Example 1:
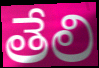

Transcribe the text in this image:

తేలి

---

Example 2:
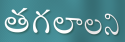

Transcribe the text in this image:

తగలాలని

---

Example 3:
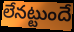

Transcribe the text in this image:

లేనట్టుందే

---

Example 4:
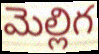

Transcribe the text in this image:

మెల్లిగ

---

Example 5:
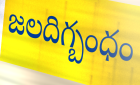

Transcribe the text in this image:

జలదిగ్బంధం